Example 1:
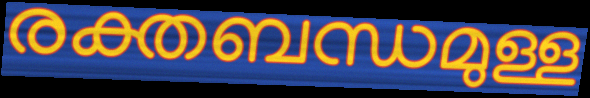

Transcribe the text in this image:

രക്തബന്ധമുള്ള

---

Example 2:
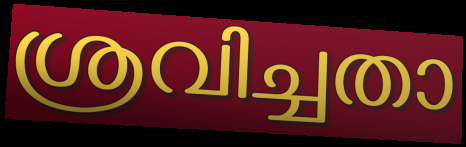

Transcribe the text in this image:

ശ്രവിച്ചതാ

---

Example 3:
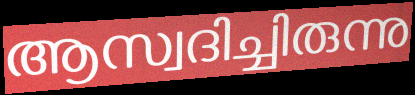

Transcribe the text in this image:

ആസ്വദിച്ചിരുന്നു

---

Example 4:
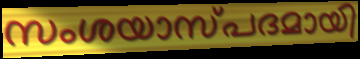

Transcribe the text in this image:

സംശയാസ്പദമായി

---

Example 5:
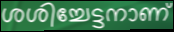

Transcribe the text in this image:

ശശിച്ചേട്ടനാണ്